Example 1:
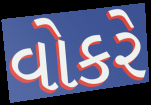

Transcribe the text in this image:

વોકરે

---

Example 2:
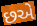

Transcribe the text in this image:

છએ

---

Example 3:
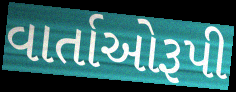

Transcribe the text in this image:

વાર્તાઓરૂપી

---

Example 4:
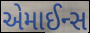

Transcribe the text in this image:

એમાઈન્સ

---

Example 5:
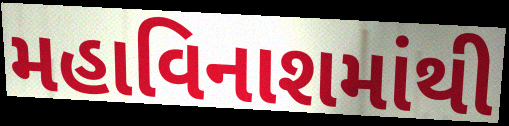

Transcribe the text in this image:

મહાવિનાશમાંથી